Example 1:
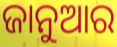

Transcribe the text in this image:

ଜାନୁଆର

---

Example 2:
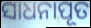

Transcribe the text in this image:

ସାଧନାପୂତ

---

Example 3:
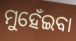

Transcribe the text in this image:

ମୁହେଁଇବା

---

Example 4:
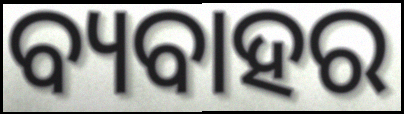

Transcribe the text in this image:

ବ୍ୟବାହର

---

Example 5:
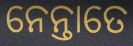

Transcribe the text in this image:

ନେନ୍ତାତେ